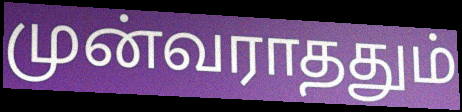
முன்வராததும்